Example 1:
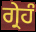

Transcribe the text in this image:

ਗ੍ਰੇਹੰ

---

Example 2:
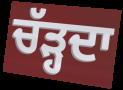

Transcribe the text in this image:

ਚੱੜ੍ਹਦਾ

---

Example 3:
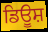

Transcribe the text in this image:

ਡਿਊਸ਼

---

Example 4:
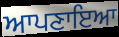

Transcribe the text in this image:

ਆਪਣਾਇਆ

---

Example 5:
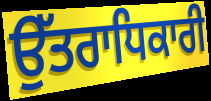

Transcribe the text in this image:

ਉੱਤਰਾਧਿਕਾਰੀ